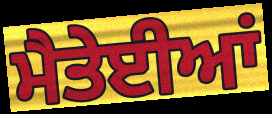
ਮੈਤੇਈਆਂ